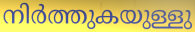
നിർത്തുകയുള്ളു